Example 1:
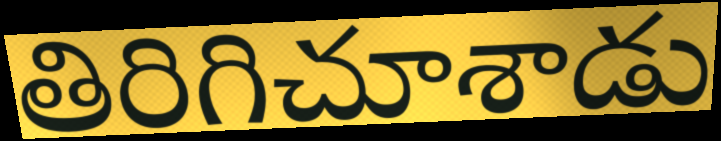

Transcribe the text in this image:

తిరిగిచూశాడు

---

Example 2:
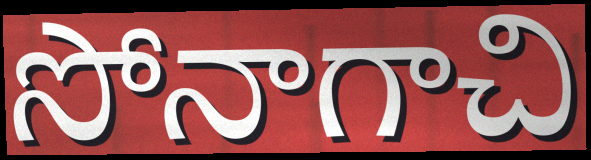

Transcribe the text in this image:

సోనాగాచి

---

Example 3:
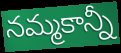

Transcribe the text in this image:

నమ్మకాన్నీ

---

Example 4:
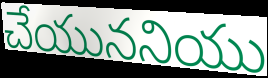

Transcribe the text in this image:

చేయుననియు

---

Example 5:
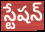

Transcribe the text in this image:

స్టేషన్